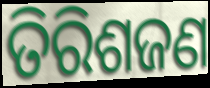
ତିରିଶଜଣ